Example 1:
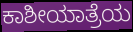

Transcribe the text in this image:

ಕಾಶೀಯಾತ್ರೆಯ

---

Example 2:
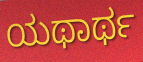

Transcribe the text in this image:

ಯಥಾರ್ಥ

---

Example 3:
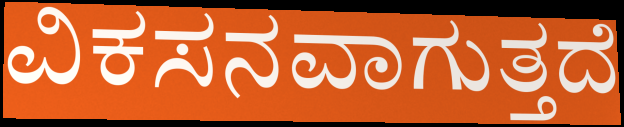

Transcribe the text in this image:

ವಿಕಸನವಾಗುತ್ತದೆ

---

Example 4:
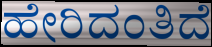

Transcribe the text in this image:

ಹೇರಿದಂತಿದೆ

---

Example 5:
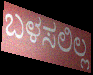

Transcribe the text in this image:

ಬಳಸಲಿಲ್ಲ